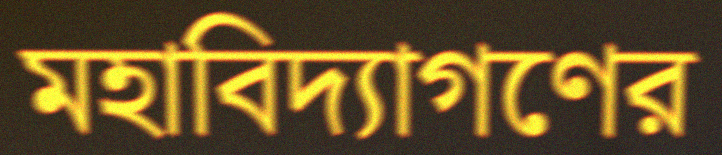
মহাবিদ্যাগণের